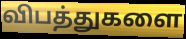
விபத்துகளை